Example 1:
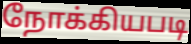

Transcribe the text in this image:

நோக்கியபடி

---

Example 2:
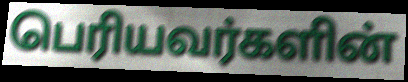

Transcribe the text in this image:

பெரியவர்களின்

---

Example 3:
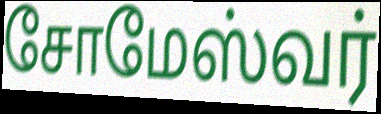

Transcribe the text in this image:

சோமேஸ்வர்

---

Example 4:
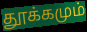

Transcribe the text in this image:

தூக்கமும்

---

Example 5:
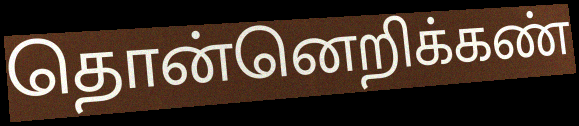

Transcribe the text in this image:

தொன்னெறிக்கண்